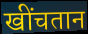
खींचतान